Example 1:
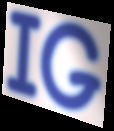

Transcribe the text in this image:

IG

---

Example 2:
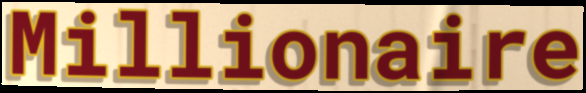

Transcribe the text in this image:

Millionaire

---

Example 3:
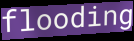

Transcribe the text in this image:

flooding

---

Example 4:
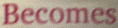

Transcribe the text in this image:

Becomes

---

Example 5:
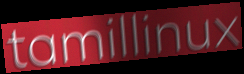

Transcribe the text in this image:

tamillinux